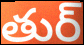
తుర్